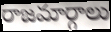
రాజమార్గాలు